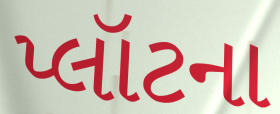
પ્લૉટના